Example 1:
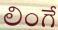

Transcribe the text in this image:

లింగే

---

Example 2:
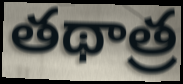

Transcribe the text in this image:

తథాత్ర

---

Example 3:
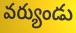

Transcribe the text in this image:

వర్యుండు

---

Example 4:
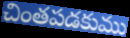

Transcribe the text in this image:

చింతపడకుము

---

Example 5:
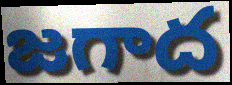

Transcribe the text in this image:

జగాద